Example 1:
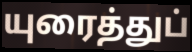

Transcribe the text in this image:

யுரைத்துப்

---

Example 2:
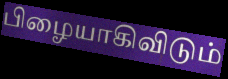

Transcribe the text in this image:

பிழையாகிவிடும்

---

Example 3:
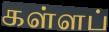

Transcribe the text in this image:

கள்ளப்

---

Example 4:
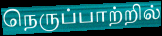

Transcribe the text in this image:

நெருப்பாற்றில்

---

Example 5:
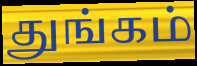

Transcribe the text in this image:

துங்கம்